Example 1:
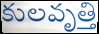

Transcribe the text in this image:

కులవృత్తి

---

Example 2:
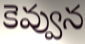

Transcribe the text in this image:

కెవ్వున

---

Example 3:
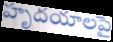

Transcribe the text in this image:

హృదయాలపై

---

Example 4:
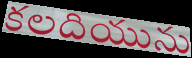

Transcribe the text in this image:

కలదియును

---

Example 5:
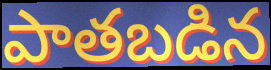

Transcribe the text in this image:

పాతబడిన